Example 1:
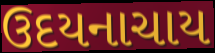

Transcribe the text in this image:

ઉદયનાચાય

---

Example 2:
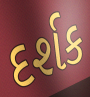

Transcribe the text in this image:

દર્શક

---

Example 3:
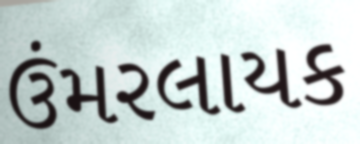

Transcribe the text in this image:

ઉંમરલાયક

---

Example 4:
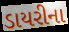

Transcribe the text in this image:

ડાયરીના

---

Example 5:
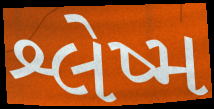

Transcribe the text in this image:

શ્લેષ્મ